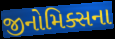
જીનોમિક્સના